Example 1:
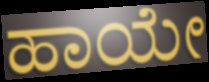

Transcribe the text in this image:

ಹಾಯೇ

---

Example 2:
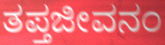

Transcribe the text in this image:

ತಪ್ತಜೀವನಂ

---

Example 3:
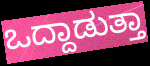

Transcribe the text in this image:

ಒದ್ದಾಡುತ್ತಾ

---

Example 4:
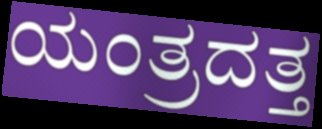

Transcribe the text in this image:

ಯಂತ್ರದತ್ತ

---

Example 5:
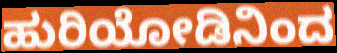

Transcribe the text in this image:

ಹುರಿಯೋಡಿನಿಂದ